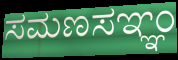
ಸಮಣಸಞ್ಞಂ